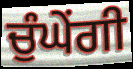
ਚੁੰਘੇਂਗੀ